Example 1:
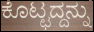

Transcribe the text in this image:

ಕೊಟ್ಟದ್ದನ್ನು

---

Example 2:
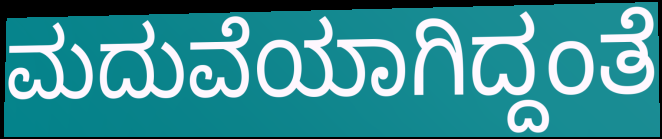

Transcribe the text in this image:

ಮದುವೆಯಾಗಿದ್ದಂತೆ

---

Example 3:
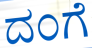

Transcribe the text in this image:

ದಂಗೆ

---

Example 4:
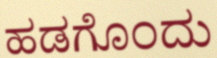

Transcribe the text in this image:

ಹಡಗೊಂದು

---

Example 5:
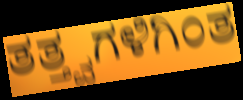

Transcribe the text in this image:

ತತ್ತ್ವಗಳಿಗಿಂತ